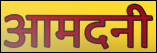
आमदनी